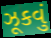
ઝૂકવું